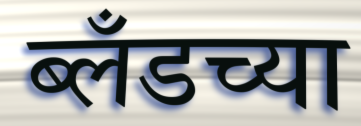
ब्लँडच्या